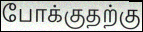
போக்குதற்கு